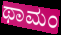
ಥಾಮಂ